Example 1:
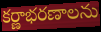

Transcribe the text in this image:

కర్ణాభరణాలను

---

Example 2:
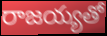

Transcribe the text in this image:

రాజయ్యతో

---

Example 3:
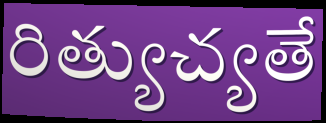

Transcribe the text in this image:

రిత్యుచ్యతే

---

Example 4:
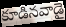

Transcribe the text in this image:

కూడినవాడై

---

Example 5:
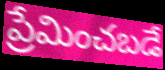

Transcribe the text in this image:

ప్రేమించబడే